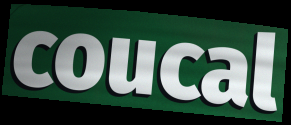
coucal